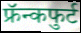
फ्रॅन्कफुर्ट